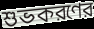
শুভকরণের